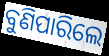
ବୁଣିପାରିଲେ